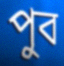
পুব